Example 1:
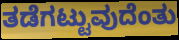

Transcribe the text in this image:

ತಡೆಗಟ್ಟುವುದೆಂತು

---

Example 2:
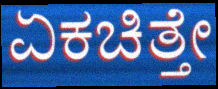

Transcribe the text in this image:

ಏಕಚಿತ್ತೇ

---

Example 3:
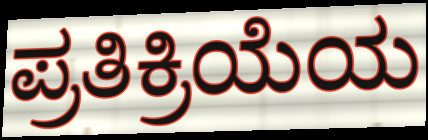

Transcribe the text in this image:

ಪ್ರತಿಕ್ರಿಯೆಯ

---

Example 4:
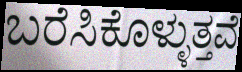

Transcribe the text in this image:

ಬರೆಸಿಕೊಳ್ಳುತ್ತವೆ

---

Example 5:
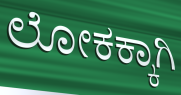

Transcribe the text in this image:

ಲೋಕಕ್ಕಾಗಿ